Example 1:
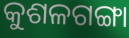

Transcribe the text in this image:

କୁଶଳଗଙ୍ଗା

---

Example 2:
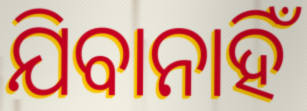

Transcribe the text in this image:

ଯିବାନାହିଁ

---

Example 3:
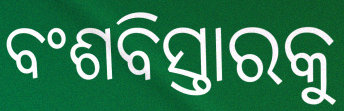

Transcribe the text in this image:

ବଂଶବିସ୍ତାରକୁ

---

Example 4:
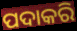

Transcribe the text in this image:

ପଦାକରି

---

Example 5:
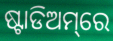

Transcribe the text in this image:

ଷ୍ଟାଡିଅମ୍‌ରେ